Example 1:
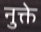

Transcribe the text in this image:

नुक्ते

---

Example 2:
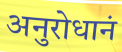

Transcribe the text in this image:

अनुरोधानं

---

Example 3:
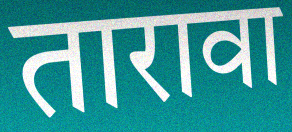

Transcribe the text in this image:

तारावा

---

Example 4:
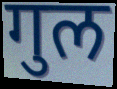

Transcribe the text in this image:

गुल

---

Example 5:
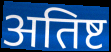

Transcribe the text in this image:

अतिष्ट